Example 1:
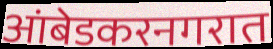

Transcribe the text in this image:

आंबेडकरनगरात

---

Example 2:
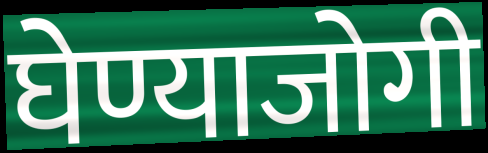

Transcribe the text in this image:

घेण्याजोगी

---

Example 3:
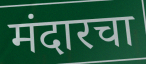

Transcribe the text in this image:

मंदारचा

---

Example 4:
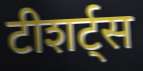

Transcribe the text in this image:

टीशर्ट्स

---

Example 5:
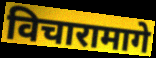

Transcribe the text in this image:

विचारामागे